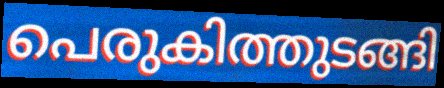
പെരുകിത്തുടങ്ങി